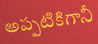
అప్పటికిగానీ